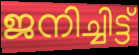
ജനിച്ചിട്ട്